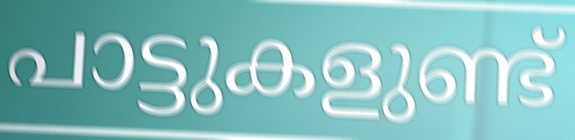
പാട്ടുകളുണ്ട്